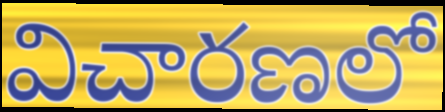
విచారణలో